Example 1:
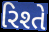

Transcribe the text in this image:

રિશ્તે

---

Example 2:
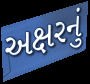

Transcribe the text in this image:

અક્ષરનું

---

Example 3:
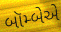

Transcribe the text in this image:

બૉમ્બેએ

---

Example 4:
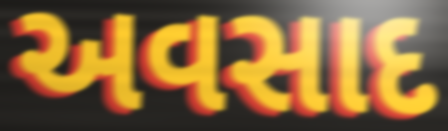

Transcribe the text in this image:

અવસાદ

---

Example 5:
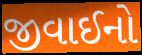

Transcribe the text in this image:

જીવાઈનો